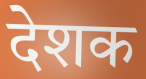
देशक